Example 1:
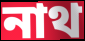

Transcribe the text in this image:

নাথ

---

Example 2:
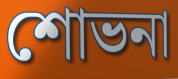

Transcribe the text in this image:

শোভনা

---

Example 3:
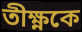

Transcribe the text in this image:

তীক্ষ্ণকে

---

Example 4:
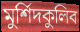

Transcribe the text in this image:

মুর্শিদকুলিব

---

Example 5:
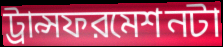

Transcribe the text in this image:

ট্রান্সফরমেশনটা